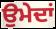
ਉਮੇਦਾਂ